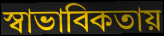
স্বাভাবিকতায়